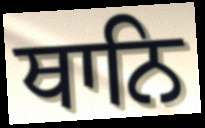
ਥਾਨਿ